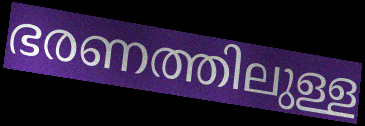
ഭരണത്തിലുള്ള